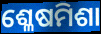
ଶ୍ଳେଷମିଶା